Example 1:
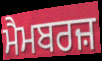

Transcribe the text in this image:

ਮੈਮਬਰਜ਼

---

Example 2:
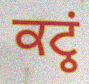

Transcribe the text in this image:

ਕਟ੍ਠਂ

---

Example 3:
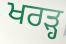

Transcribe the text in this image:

ਖਰੜ੍ਹ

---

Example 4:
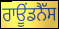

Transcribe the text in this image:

ਰਾਊਂਡਨੈੱਸ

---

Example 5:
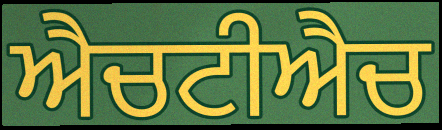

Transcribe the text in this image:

ਐਚਟੀਐਚ